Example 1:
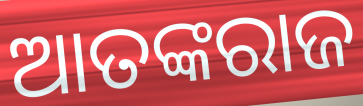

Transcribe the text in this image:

ଆତଙ୍କରାଜ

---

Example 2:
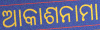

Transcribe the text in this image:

ଆକାଶନାମା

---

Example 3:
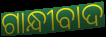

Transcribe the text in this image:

ଗାନ୍ଧୀବାଦ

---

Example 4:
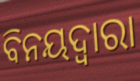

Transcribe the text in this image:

ବିନୟଦ୍ବାରା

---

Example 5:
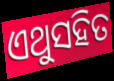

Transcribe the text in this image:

ଏଥୁସହିତ